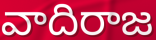
వాదిరాజ